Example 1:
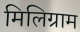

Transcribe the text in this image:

मिलिग्राम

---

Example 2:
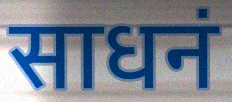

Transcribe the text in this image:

साधनं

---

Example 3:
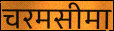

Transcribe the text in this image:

चरमसीमा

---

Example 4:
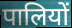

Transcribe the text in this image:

पालियों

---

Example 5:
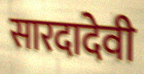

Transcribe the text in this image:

सारदादेवी